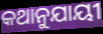
କଥାନୁଯାୟୀ